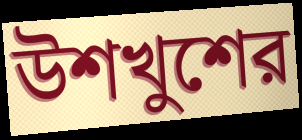
উশখুশের